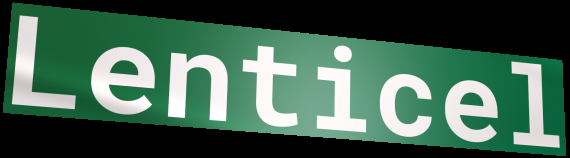
Lenticel